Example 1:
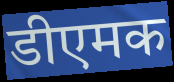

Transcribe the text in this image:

डीएमक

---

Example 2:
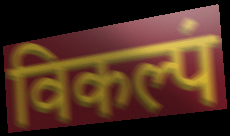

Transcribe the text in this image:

विकल्पं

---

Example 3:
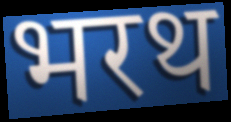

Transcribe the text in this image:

भरथ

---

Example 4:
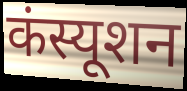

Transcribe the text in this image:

कंस्यूशन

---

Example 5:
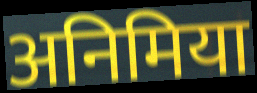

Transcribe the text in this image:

अनिमिया